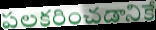
పలకరించడానికే